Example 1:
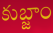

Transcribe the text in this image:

కుబ్జాం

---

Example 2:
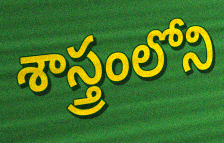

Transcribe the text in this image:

శాస్త్రంలోని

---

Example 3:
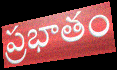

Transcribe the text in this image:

ప్రభాతం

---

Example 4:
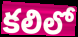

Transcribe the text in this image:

కలిలో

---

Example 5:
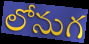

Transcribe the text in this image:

లోనుగ